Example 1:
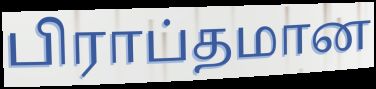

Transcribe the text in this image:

பிராப்தமான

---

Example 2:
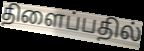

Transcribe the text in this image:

திளைப்பதில்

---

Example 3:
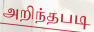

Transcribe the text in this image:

அறிந்தபடி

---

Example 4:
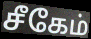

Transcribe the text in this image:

சீகேம்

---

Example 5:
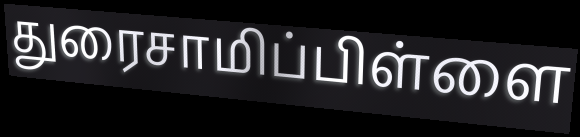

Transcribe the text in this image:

துரைசாமிப்பிள்ளை